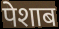
पेशाब